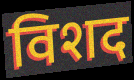
विशद